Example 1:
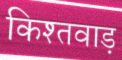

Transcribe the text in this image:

किश्तवाड़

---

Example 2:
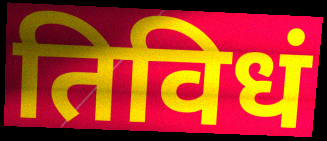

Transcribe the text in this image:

तिविधं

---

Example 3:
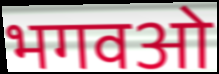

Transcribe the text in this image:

भगवओ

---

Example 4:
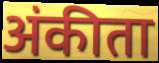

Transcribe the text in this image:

अंकीता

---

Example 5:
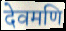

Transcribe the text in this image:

देवमणि